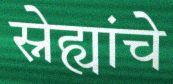
स्नेह्यांचे